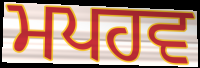
ਮਪਹਵ